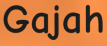
Gajah